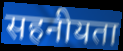
सहनीयता